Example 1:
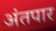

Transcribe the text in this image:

अंतपार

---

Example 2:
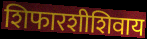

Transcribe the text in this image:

शिफारशीशिवाय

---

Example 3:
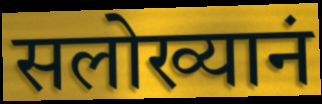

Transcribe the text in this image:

सलोख्यानं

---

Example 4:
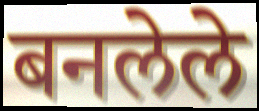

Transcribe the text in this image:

बनलेले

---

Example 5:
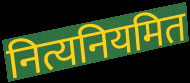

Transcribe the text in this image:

नित्यनियमित